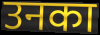
उनका